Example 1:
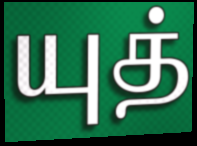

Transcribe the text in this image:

யுத்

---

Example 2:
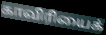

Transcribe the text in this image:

காவிரியைக்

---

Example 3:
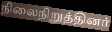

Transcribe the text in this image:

நிலைநிறுத்தினர்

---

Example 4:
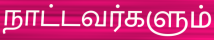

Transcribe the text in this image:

நாட்டவர்களும்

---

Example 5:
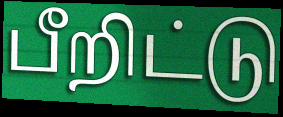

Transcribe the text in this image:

பீறிட்டு